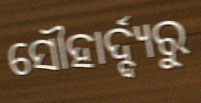
ସୌହାର୍ଦ୍ଦ୍ୟରୁ